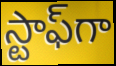
స్టాఫ్‌గా